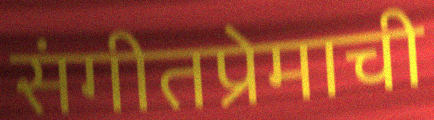
संगीतप्रेमाची